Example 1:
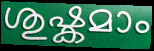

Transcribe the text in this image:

ശുഷ്കമാം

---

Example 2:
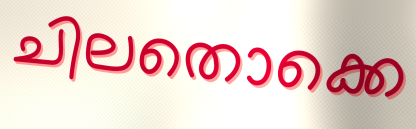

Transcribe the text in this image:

ചിലതൊക്കെ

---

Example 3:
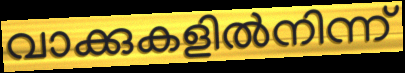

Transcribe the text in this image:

വാക്കുകളിൽനിന്ന്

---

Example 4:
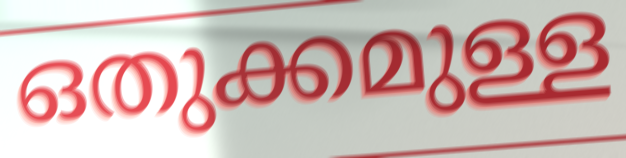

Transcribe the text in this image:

ഒതുക്കമുള്ള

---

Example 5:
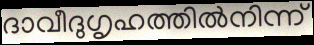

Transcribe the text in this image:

ദാവീദുഗൃഹത്തിൽനിന്ന്